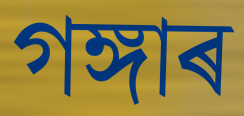
গঙ্গাৰ